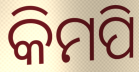
କିମପି